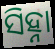
ସିହ୍ନା